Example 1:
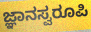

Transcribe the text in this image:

ಜ್ಞಾನಸ್ವರೂಪಿ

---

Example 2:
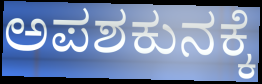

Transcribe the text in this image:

ಅಪಶಕುನಕ್ಕೆ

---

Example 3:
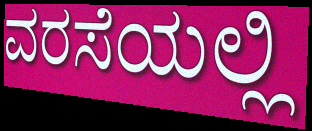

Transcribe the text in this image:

ವರಸೆಯಲ್ಲಿ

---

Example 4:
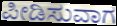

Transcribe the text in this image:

ಪೀಡಿಸುವಾಗ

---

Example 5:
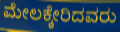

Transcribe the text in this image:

ಮೇಲಕ್ಕೇರಿದವರು